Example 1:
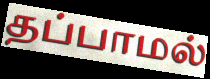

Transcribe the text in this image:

தப்பாமல்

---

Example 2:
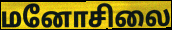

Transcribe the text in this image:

மனோசிலை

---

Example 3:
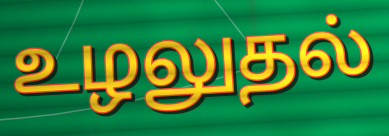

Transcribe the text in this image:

உழலுதல்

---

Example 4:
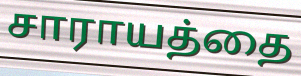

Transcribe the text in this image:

சாராயத்தை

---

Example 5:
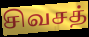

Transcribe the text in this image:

சிவசத்